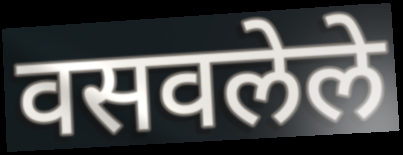
वसवलेले